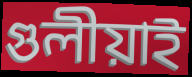
গুলীয়াই